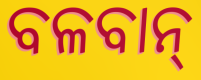
ବଳବାନ୍